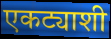
एकट्याशी